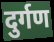
दुर्गण